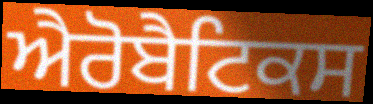
ਐਰੋਬੈਟਿਕਸ